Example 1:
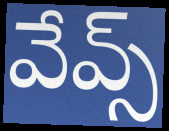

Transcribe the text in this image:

వేవ్స్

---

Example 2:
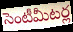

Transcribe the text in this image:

సెంటీమీటర్ల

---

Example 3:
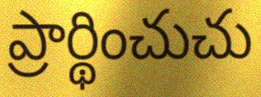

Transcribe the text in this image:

ప్రార్థించుచు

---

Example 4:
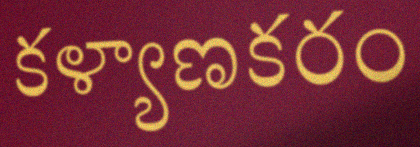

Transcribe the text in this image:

కళ్యాణకరం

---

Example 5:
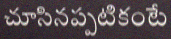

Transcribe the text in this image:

చూసినప్పటికంటే